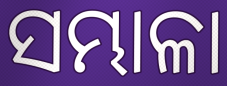
ସମ୍ଭାଳା